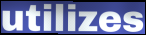
utilizes